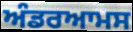
ਅੰਡਰਆਮਸ